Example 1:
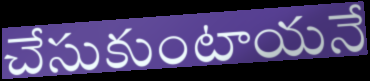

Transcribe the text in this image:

చేసుకుంటాయనే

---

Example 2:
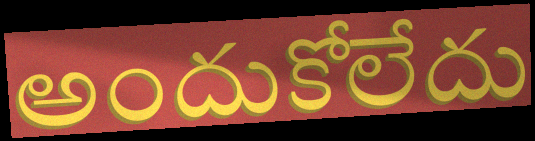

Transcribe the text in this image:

అందుకోలేదు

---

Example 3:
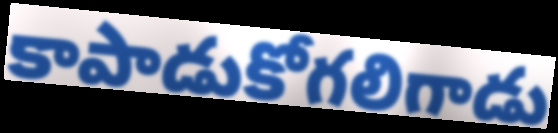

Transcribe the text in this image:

కాపాడుకోగలిగాడు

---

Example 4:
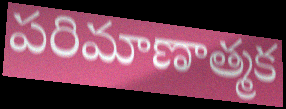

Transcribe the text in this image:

పరిమాణాత్మక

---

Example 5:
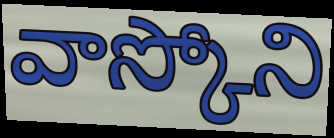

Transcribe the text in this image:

వాస్కోని